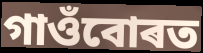
গাওঁবোৰত